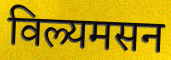
विल्यमसन